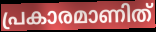
പ്രകാരമാണിത്